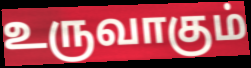
உருவாகும்